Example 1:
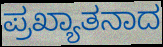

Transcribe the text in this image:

ಪ್ರಖ್ಯಾತನಾದ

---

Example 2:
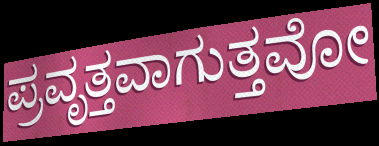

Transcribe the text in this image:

ಪ್ರವೃತ್ತವಾಗುತ್ತವೋ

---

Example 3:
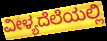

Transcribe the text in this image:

ವೀಳ್ಯದೆಲೆಯಲ್ಲಿ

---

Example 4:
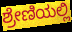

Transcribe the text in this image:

ಶ್ರೇಣಿಯಲ್ಲಿ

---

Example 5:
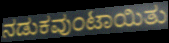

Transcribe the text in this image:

ನಡುಕವುಂಟಾಯಿತು